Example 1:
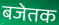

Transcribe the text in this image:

बजेतक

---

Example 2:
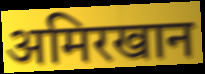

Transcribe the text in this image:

अमिरखान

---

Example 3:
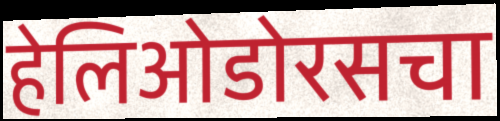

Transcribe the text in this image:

हेलिओडोरसचा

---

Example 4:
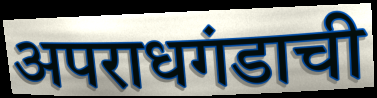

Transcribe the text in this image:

अपराधगंडाची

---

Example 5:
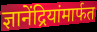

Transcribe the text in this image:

ज्ञानेंद्रियांमार्फत